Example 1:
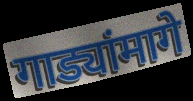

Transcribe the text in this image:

गाड्यांमागे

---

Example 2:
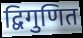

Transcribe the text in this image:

द्विगुणित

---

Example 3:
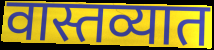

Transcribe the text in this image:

वास्तव्यात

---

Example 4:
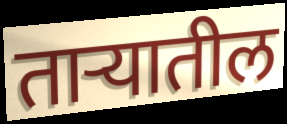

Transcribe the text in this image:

ताऱ्यातील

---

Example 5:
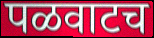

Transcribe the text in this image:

पळवाटच